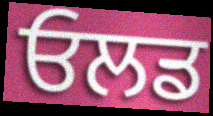
ਓਲਡ